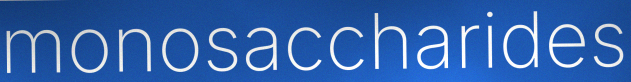
monosaccharides